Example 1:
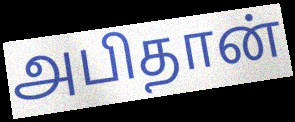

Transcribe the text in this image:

அபிதான்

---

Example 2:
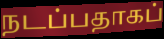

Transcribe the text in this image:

நடப்பதாகப்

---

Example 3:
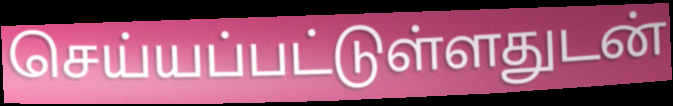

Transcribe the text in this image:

செய்யப்பட்டுள்ளதுடன்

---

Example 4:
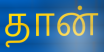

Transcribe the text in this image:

தான்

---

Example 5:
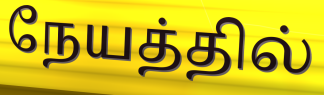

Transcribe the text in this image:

நேயத்தில்